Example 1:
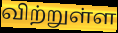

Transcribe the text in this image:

விற்றுள்ள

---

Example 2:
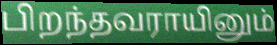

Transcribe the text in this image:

பிறந்தவராயினும்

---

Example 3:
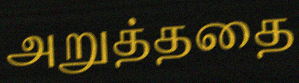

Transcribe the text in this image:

அறுத்ததை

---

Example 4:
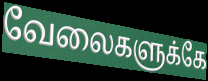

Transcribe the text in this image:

வேலைகளுக்கே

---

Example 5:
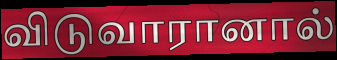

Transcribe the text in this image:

விடுவாரானால்